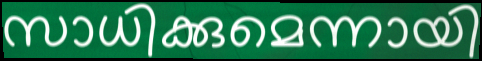
സാധിക്കുമെന്നായി